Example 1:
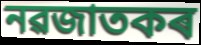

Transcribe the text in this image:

নৱজাতকৰ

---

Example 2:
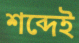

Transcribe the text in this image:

শব্দেই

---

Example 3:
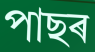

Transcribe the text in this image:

পাছৰ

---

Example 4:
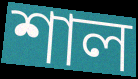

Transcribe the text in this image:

শাল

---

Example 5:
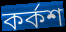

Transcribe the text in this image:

কৰ্কশ